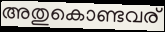
അതുകൊണ്ടവര്